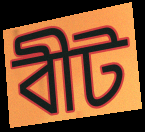
বীট